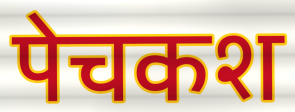
पेचकश